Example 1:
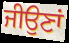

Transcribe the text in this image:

ਜੀਉਣਾਂ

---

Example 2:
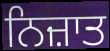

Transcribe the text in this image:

ਨਿਜ਼ਾਤ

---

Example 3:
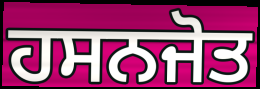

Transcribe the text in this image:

ਹਸਨਜੋਤ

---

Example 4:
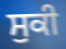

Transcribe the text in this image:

ਸੁਕੀ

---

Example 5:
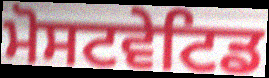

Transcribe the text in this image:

ਮੋਸਟਵੇਟਿਡ